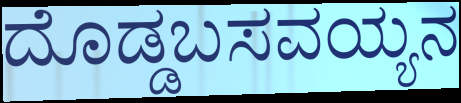
ದೊಡ್ಡಬಸವಯ್ಯನ